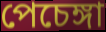
পেচেঙ্গা